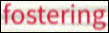
fostering